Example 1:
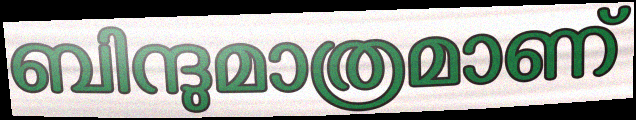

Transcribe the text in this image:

ബിന്ദുമാത്രമാണ്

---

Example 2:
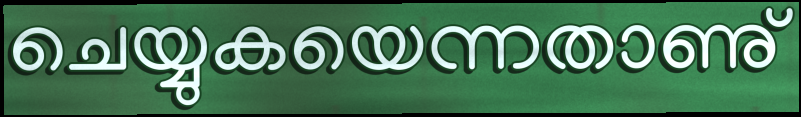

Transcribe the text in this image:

ചെയ്യുകയെന്നതാണു്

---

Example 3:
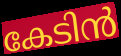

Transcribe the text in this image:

കേടിൻ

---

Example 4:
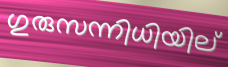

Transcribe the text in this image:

ഗുരുസന്നിധിയില്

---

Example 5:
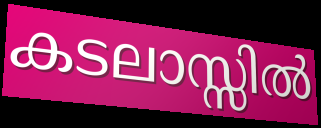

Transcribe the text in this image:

കടലാസ്സിൽ